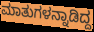
ಮಾತುಗಳನ್ನಾಡಿದ್ದ